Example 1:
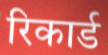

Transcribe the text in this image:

रिकार्ड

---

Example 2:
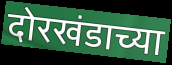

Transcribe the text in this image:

दोरखंडाच्या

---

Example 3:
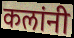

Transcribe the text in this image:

कलांनी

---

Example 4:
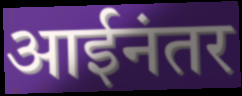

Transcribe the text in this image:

आईनंतर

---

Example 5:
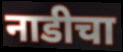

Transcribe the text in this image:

नाडीचा